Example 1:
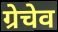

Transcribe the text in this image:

ग्रेचेव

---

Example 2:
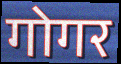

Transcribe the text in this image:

गोगर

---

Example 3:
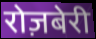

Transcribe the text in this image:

रोज़बेरी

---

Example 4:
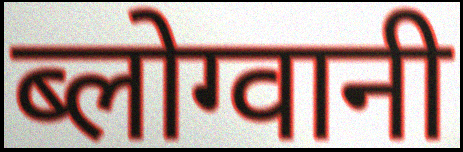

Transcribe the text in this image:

ब्लोग्वानी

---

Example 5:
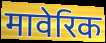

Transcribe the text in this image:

मावेरिक